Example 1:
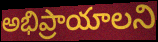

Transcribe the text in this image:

అభిప్రాయాలని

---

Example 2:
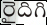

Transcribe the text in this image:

రైదిగి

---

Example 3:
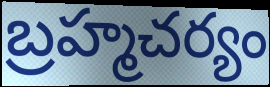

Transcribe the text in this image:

బ్రహ్మచర్యం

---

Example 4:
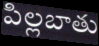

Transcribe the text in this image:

పిల్లబాతు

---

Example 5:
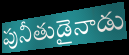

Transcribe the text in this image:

పునీతుడైనాడు